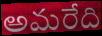
అమరేది